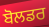
ਬੋਲਡਰ